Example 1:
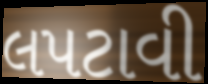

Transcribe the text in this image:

લપટાવી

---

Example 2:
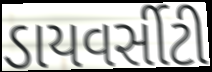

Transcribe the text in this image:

ડાયવર્સીટી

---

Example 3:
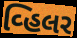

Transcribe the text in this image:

વ્હિલર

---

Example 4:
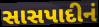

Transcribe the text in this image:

સાસપાદીનં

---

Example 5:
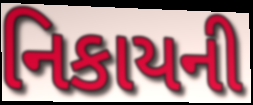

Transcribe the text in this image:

નિકાયની